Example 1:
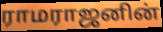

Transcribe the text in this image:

ராமராஜனின்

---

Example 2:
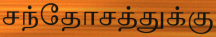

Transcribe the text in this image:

சந்தோசத்துக்கு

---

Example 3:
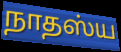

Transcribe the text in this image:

நாதஸ்ய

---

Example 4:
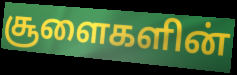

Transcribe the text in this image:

சூளைகளின்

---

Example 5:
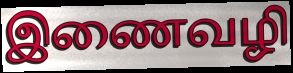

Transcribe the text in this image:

இணைவழி